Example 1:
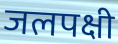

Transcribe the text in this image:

जलपक्षी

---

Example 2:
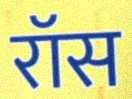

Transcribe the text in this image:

रॉस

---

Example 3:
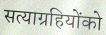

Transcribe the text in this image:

सत्याग्रहियोंको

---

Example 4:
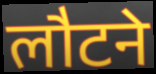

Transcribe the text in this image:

लौटने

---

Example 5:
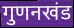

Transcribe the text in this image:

गुणनखंड